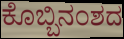
ಕೊಬ್ಬಿನಂಶದ